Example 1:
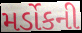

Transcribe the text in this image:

મર્ડોકની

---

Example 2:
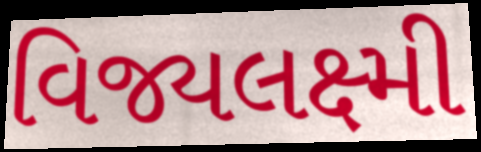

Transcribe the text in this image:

વિજ્યલક્ષ્મી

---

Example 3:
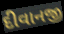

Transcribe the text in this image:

દીવાનજી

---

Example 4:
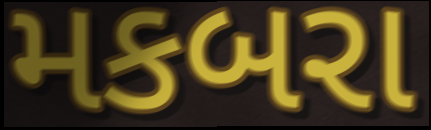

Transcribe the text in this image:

મકબરા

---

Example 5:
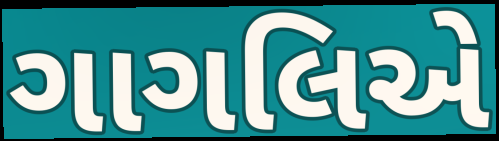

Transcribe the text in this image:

ગાગલિએ